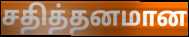
சதித்தனமான